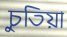
চুতিয়া